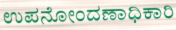
ಉಪನೋಂದಣಾಧಿಕಾರಿ